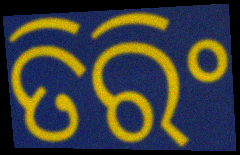
ତିରିଂ